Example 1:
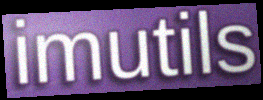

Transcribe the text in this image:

imutils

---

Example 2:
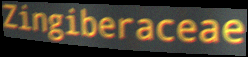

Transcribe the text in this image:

Zingiberaceae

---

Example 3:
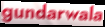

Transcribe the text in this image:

gundarwala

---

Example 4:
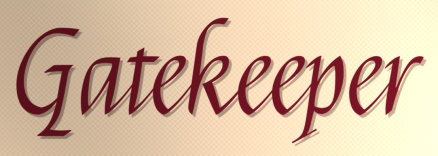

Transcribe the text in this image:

Gatekeeper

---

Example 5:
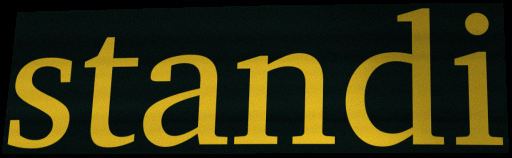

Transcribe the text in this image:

standi